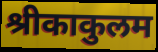
श्रीकाकुलम